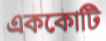
এককোটি